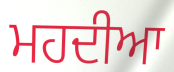
ਮਹਦੀਆ